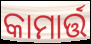
କାମାର୍ତ୍ତ